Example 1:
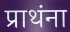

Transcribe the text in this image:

प्राथंना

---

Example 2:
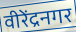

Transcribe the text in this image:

वीरेंद्रनगर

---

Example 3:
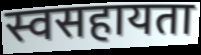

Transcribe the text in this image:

स्वसहायता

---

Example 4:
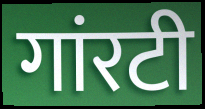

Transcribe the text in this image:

गांरटी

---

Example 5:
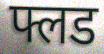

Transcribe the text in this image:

फ्लड